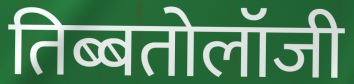
तिब्बतोलॉजी